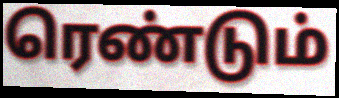
ரெண்டும்